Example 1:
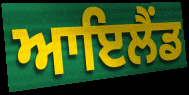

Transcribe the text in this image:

ਆਇਲੈੰਡ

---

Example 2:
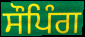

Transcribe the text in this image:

ਸੌਪਿੰਗ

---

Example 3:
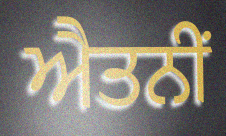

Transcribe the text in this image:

ਐਤਨੀਂ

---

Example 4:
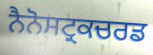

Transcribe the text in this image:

ਨੈਨੋਸਟ੍ਰਕਚਰਡ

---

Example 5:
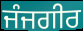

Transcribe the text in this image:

ਜੰਜਗੀਰ